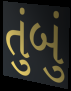
તુંબું